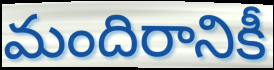
మందిరానికీ